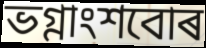
ভগ্নাংশবোৰ